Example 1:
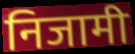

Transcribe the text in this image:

निजामी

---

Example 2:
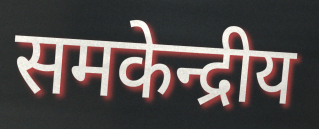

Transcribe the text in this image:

समकेन्द्रीय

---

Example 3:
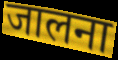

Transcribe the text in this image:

जालना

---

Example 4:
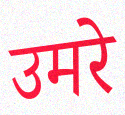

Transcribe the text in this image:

उमरे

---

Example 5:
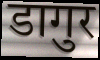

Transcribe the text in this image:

डागुर